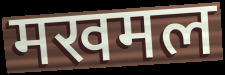
मखमल